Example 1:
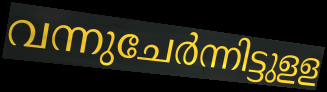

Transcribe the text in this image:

വന്നുചേർന്നിട്ടുളള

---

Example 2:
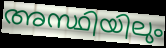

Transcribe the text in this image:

അസ്ഥിയിലും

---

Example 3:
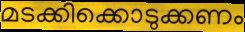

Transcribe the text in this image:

മടക്കിക്കൊടുക്കണം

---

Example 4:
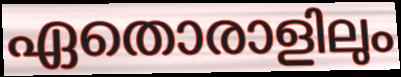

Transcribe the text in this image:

ഏതൊരാളിലും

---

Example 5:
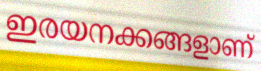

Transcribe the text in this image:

ഇരയനക്കങ്ങളാണ്